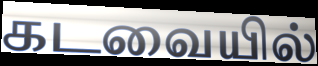
கடவையில்